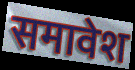
समावेश